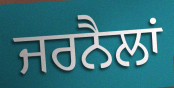
ਜਰਨੈਲਾਂ